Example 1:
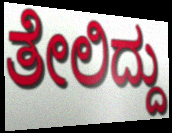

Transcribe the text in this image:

ತೇಲಿದ್ದು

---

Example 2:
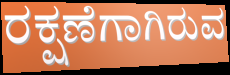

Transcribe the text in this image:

ರಕ್ಷಣೆಗಾಗಿರುವ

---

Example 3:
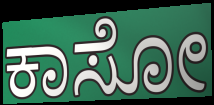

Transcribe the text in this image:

ಕಾಸೋ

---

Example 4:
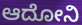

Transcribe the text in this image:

ಆದೋನಿ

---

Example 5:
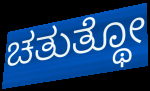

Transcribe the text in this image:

ಚತುತ್ಥೋ